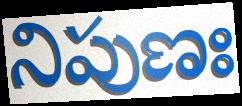
నిపుణః